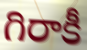
గిరాకీ